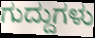
ಗುದ್ದುಗಳು